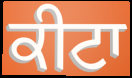
ਕੀਟਾ